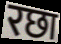
रछा